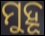
ମୁହୂ